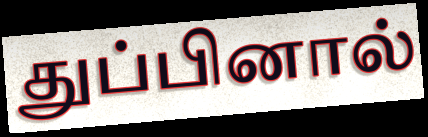
துப்பினால்